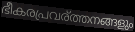
ഭീകരപ്രവര്ത്തനങ്ങളും